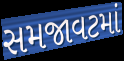
સમજાવટમાં